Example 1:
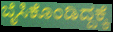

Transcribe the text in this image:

ಬೈಸಿಕೊಂಡಿದ್ದಕ್ಕೆ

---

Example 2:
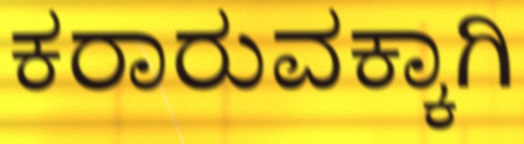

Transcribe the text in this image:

ಕರಾರುವಕ್ಕಾಗಿ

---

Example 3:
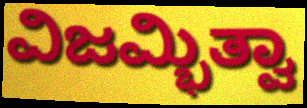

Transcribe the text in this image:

ವಿಜಮ್ಭಿತ್ವಾ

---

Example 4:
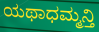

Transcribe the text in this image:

ಯಥಾಧಮ್ಮನ್ತಿ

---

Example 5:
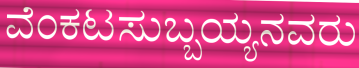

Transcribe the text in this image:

ವೆಂಕಟಸುಬ್ಬಯ್ಯನವರು